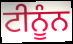
ਟੀਨੂੰਨ